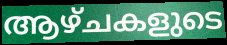
ആഴ്ചകളുടെ